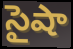
సైషా